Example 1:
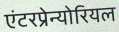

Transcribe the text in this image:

एंटरप्रेन्योरियल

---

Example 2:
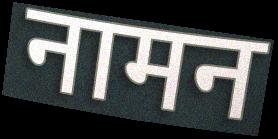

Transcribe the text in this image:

नामन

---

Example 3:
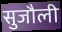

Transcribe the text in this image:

सुजौली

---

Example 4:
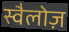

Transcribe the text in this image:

स्वैलोज़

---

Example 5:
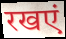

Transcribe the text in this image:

रखएं